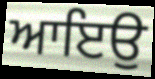
ਆਇਉ